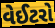
વેઈટરો